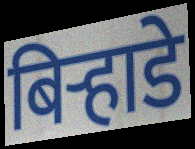
बिऱ्हाडे